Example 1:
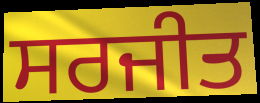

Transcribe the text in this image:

ਸਰਜੀਤ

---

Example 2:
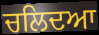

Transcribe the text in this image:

ਚਲਿਦਆ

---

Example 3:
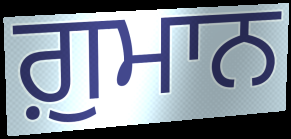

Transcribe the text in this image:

ਗ਼ੁਮਾਨ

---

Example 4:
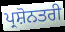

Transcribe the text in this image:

ਪ੍ਰਸ਼ੋਨਤਰੀ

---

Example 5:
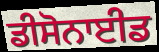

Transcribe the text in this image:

ਡੀਸੋਨਾਈਡ